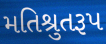
મતિશ્રુતરૂપ